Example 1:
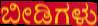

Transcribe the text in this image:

ಬೀಡಿಗಳು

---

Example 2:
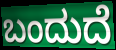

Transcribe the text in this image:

ಬಂದುದೆ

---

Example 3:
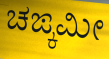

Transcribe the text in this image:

ಚಙ್ಕಮೀ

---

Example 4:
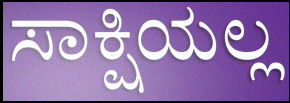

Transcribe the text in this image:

ಸಾಕ್ಷಿಯಲ್ಲ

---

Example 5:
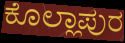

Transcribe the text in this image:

ಕೊಲ್ಲಾಪುರ